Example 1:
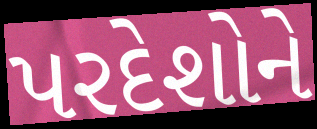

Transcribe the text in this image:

પરદેશોને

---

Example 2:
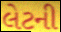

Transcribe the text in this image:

લેટની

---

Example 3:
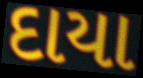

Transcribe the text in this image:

દાયા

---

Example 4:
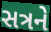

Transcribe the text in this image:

સત્રને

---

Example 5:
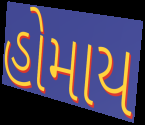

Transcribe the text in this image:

હોમાય